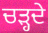
ਚਡ਼੍ਹਦੇ